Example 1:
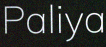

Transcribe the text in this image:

Paliya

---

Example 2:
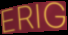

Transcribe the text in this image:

ERIG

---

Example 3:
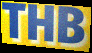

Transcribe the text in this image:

THB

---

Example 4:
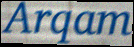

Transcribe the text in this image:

Arqam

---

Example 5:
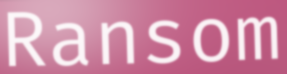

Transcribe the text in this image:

Ransom